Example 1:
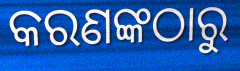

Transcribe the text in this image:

କରଣଙ୍କଠାରୁ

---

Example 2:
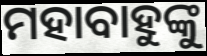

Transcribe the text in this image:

ମହାବାହୁଙ୍କୁ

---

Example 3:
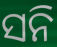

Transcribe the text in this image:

ସନି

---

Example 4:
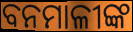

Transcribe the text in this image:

ବନମାଳୀଙ୍କ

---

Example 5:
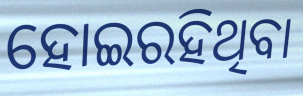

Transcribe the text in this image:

ହୋଇରହିଥିବା